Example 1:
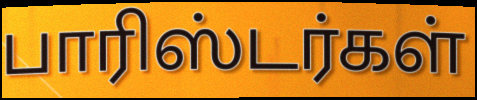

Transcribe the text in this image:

பாரிஸ்டர்கள்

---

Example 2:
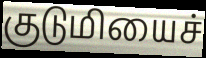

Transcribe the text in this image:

குடுமியைச்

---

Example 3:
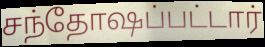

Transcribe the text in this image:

சந்தோஷப்பட்டார்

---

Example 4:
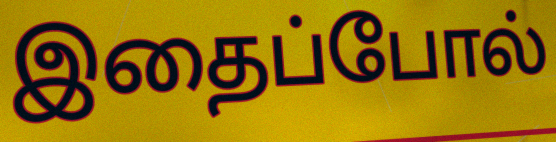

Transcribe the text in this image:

இதைப்போல்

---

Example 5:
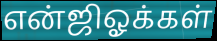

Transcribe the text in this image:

என்ஜிஓக்கள்